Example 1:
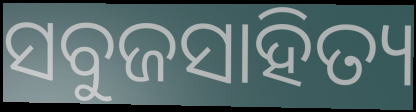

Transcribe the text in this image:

ସବୁଜସାହିତ୍ୟ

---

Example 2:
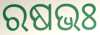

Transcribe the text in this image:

ରଷଭଃ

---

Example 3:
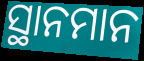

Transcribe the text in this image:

ସ୍ଥାନମାନ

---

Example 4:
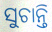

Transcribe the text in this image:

ସୁଚାନ୍ତି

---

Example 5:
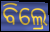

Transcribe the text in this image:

ବିଲ୍ରେ